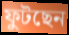
ফুটছেন